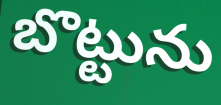
బొట్టును